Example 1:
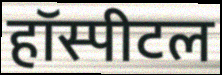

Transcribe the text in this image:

हॉस्पीटल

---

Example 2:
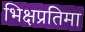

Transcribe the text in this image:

भिक्षप्रतिमा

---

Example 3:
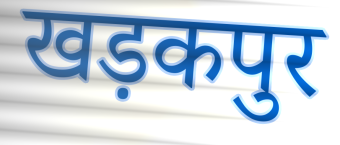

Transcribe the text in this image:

खड़कपुर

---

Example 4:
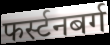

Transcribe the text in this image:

फर्स्टनबर्ग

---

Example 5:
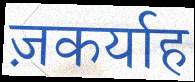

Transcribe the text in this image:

ज़कर्याह